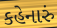
કહેનારું